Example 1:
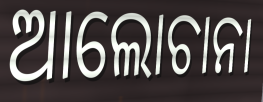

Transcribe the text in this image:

ଆଲୋଚାନା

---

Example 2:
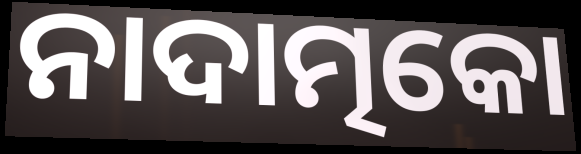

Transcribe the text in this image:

ନାଦାତ୍ମକୋ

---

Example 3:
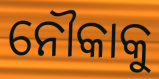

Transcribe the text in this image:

ନୌକାକୁ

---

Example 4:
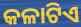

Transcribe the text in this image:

କଳାଟିଏ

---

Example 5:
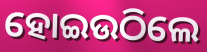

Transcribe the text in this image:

ହୋଇଉଠିଲେ